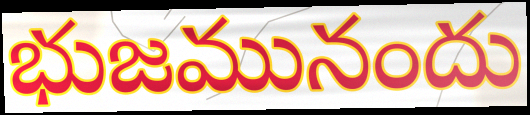
భుజమునందు